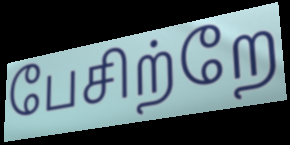
பேசிற்றே